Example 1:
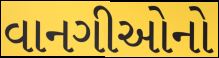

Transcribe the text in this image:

વાનગીઓનો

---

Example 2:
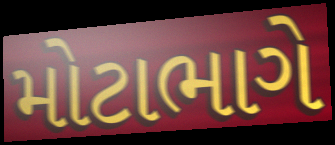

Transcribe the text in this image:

મોટાભાગે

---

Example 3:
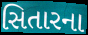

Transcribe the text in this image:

સિતારના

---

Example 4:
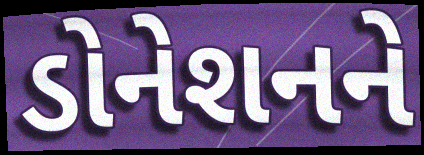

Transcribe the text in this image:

ડોનેશનને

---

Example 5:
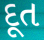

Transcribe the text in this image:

દૂત